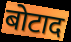
बोटाद